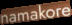
namakore